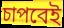
চাপবেই